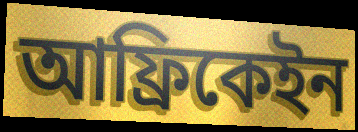
আফ্রিকেইন